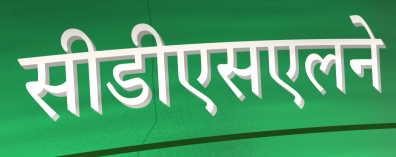
सीडीएसएलने